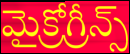
మైక్రోగ్రీన్స్